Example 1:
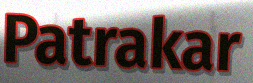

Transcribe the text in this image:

Patrakar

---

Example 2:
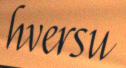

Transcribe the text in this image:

hversu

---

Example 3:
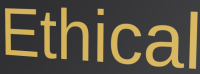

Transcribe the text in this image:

Ethical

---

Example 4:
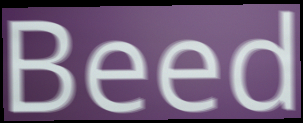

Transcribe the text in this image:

Beed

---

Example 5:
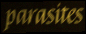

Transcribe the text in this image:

parasites